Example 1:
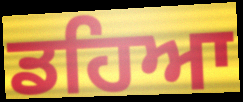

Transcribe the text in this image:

ਡਹਿਆ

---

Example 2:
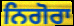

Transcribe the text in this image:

ਨਿਗੋਰਾ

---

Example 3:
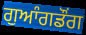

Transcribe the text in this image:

ਗੁਆੰਗਡੌਂਗ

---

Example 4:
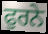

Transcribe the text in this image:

ਫੁਰਨੇ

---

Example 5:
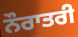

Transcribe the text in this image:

ਨੌਰਾਤਰੀ